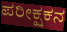
ಪರೀಕ್ಷಕನ